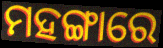
ମହଙ୍ଗାରେ